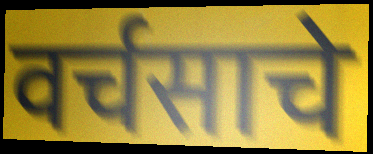
वर्चसाचे